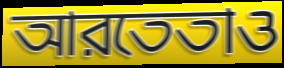
আরতেতাও